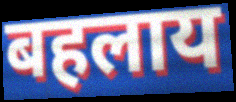
बहलाय